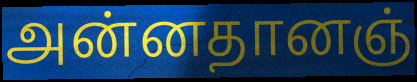
அன்னதானஞ்